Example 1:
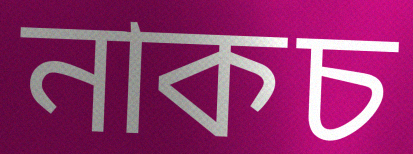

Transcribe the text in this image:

নাকচ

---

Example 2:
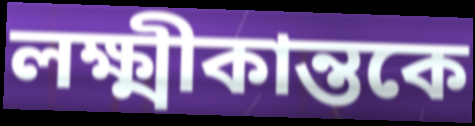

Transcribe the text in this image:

লক্ষ্মীকান্তকে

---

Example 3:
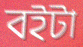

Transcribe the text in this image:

বইটা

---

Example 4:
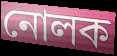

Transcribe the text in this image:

নোলক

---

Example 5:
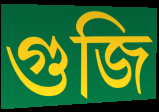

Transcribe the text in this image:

গুজি